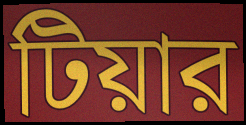
টিয়ার